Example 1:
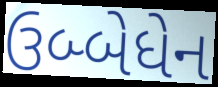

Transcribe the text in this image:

ઉબ્બેધેન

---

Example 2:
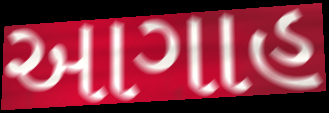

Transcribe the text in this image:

આગાહ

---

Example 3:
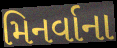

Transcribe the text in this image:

મિનર્વાના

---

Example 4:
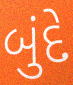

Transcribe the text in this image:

બુંદે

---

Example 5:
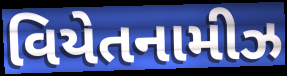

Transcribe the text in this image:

વિયેતનામીઝ